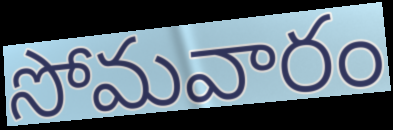
సోమవారం